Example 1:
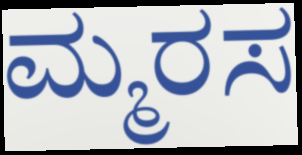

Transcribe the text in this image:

ಮ್ಮರಸ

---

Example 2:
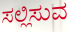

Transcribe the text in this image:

ಸಲ್ಲಿಸುವ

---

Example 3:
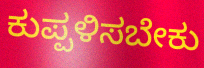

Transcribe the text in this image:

ಕುಪ್ಪಳಿಸಬೇಕು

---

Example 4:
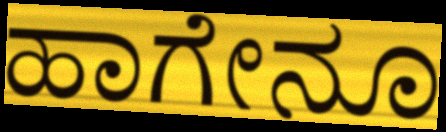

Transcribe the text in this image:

ಹಾಗೇನೂ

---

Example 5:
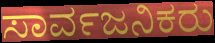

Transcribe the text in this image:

ಸಾರ್ವಜನಿಕರು